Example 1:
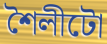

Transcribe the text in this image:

শৈলীটো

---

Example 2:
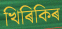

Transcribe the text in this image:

খিৰিকিৰ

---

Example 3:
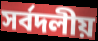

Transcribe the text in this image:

সৰ্বদলীয়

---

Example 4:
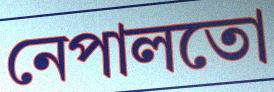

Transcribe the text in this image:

নেপালতো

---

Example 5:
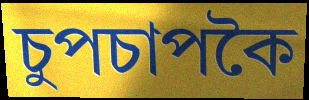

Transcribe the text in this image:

চুপচাপকৈ